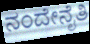
ನಂದೇನೈತಿ